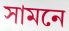
সামনে